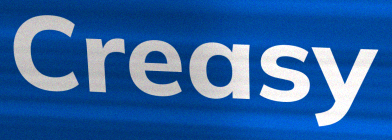
Creasy